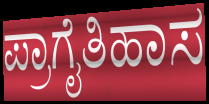
ಪ್ರಾಗೈತಿಹಾಸ